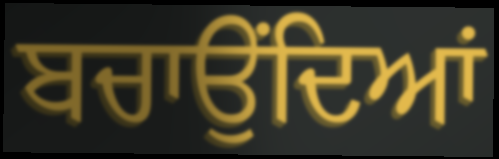
ਬਚਾਉਂਦਿਆਂ